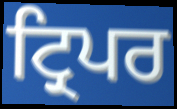
ਟ੍ਰਿਪਰ